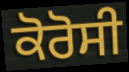
ਕੋਰੋਸੀ